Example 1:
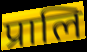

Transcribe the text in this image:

प्रालि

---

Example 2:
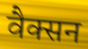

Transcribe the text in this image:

वैक्सन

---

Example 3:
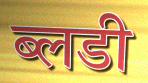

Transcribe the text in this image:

ब्लडी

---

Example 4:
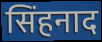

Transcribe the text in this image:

सिंहनाद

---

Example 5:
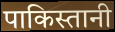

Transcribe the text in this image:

पाकिस्‍तानी